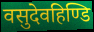
वसुदेवहिण्डि